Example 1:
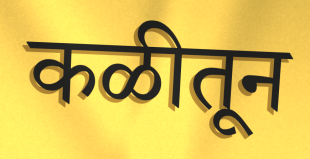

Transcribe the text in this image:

कळीतून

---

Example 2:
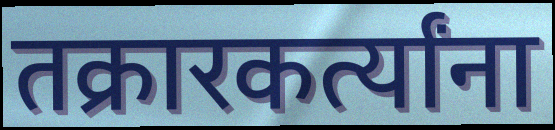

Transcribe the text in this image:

तक्रारकर्त्यांना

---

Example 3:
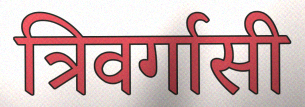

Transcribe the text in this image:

त्रिवर्गासी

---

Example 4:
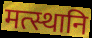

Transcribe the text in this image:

मत्स्थानि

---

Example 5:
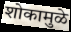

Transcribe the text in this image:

शोकामुळे